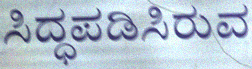
ಸಿದ್ಧಪಡಿಸಿರುವ